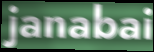
janabai